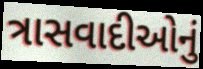
ત્રાસવાદીઓનું